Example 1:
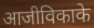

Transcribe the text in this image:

आजीविकाके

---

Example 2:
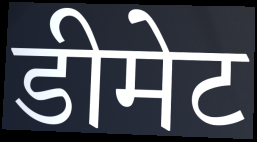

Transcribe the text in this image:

डीमेट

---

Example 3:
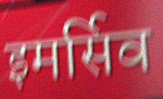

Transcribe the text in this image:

इमर्सिव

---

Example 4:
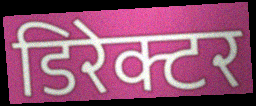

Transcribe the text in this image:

डिरेक्टर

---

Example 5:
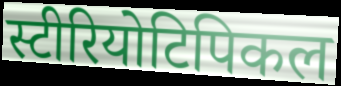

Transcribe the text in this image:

स्टीरियोटिपिकल